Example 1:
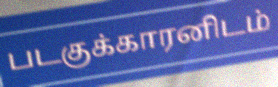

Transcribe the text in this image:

படகுக்காரனிடம்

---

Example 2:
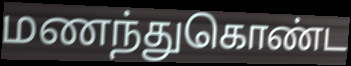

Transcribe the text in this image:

மணந்துகொண்ட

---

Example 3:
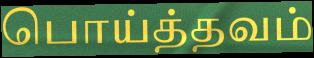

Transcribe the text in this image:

பொய்த்தவம்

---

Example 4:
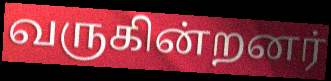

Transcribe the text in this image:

வருகின்றனர்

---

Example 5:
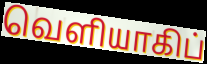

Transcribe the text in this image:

வெளியாகிப்